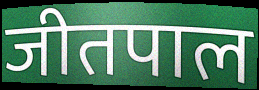
जीतपाल